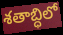
శతాబ్ధిలో